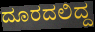
ದೂರದಲಿದ್ದ